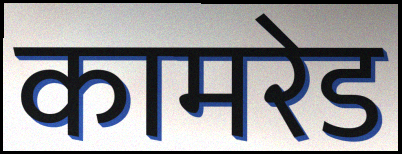
कामरेड